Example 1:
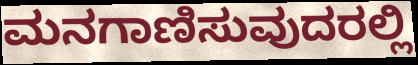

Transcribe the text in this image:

ಮನಗಾಣಿಸುವುದರಲ್ಲಿ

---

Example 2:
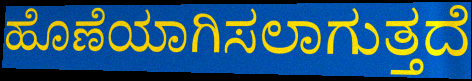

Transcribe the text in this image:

ಹೊಣೆಯಾಗಿಸಲಾಗುತ್ತದೆ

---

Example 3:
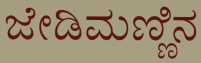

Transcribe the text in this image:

ಜೇಡಿಮಣ್ಣಿನ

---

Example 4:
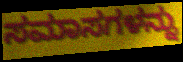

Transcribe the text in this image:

ಸಮಾಸಗಳನ್ನು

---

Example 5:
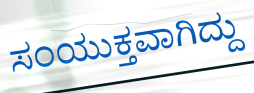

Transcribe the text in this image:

ಸಂಯುಕ್ತವಾಗಿದ್ದು